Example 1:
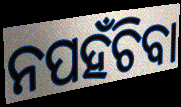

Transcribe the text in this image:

ନପହଁଚିବା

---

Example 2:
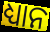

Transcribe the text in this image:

ଧ୍ୟାନ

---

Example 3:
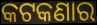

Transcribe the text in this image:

କଟକଣାର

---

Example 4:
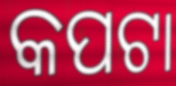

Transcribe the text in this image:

କପଟା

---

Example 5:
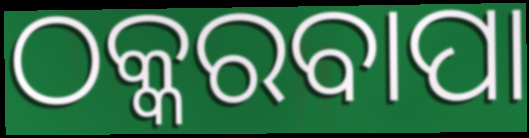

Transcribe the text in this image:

ଠକ୍କରବାପା